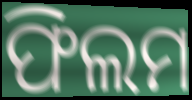
ଫିଲମ